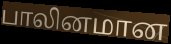
பாலினமான